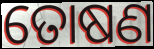
ତୋଷଣ